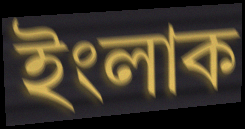
ইংলাক